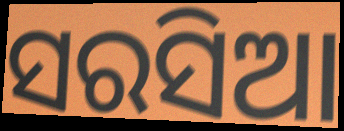
ସରସିଆ